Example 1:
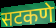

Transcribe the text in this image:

सटकणे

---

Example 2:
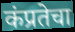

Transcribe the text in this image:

कंप्रतेचा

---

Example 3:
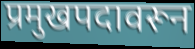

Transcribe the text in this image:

प्रमुखपदावरून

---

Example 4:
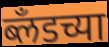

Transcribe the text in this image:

ब्लँडच्या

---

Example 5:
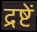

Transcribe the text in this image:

द्रष्टें